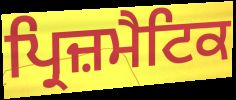
ਪ੍ਰਿਜ਼ਮੈਟਿਕ